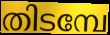
തിടമ്പേ